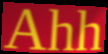
Ahh